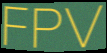
FPV